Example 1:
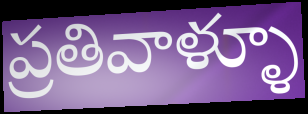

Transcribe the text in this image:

ప్రతివాళ్ళూ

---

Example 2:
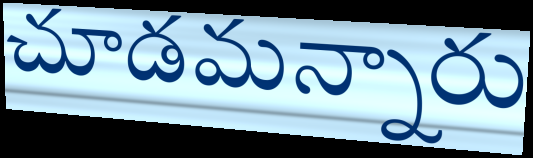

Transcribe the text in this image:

చూడమన్నారు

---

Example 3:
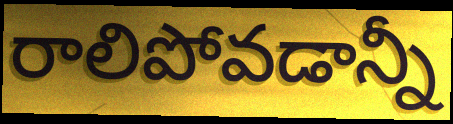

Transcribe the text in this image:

రాలిపోవడాన్నీ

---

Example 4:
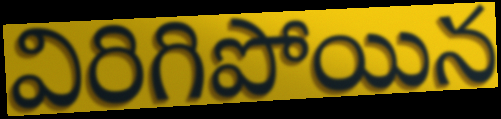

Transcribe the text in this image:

విరిగిపోయిన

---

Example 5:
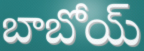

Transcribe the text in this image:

బాబోయ్